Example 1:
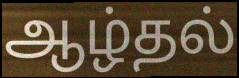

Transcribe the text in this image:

ஆழ்தல்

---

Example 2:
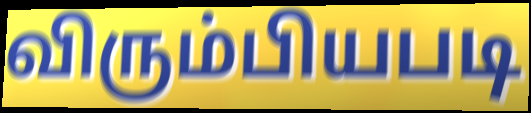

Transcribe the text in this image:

விரும்பியபடி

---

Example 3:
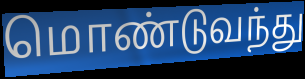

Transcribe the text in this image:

மொண்டுவந்து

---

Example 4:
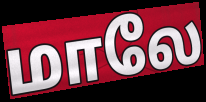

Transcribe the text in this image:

மாலே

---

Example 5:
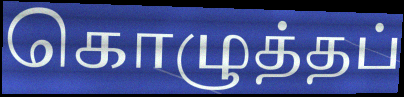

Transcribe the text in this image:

கொழுத்தப்